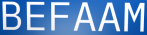
BEFAAM